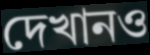
দেখানও